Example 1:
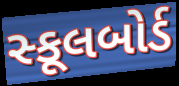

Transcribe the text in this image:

સ્કૂલબોર્ડ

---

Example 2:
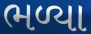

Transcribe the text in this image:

ભળ્યા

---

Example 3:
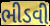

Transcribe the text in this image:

ભીડવી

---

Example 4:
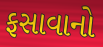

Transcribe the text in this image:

ફસાવાનો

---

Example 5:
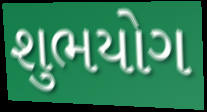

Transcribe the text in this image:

શુભયોગ